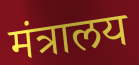
मंत्रालय